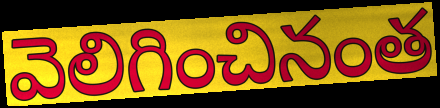
వెలిగించినంత